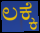
ಲಕ್ಕೆ